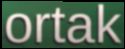
ortak